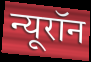
न्यूरॉन